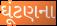
ઘૂંટણના